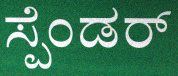
ಸ್ಪೆಂಡರ್